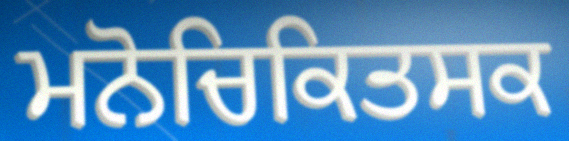
ਮਨੋਚਿਕਿਤਸਕ